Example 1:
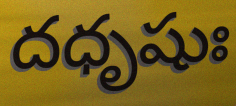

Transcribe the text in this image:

దధృషుః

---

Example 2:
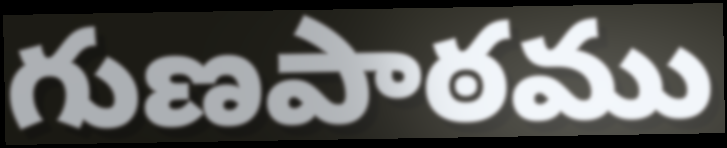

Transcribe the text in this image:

గుణపాఠము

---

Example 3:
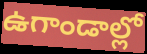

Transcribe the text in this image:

ఉగాండాల్లో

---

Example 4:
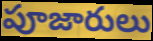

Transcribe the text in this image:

పూజారులు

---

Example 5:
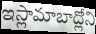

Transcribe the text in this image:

ఇస్లామాబాద్లోని